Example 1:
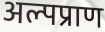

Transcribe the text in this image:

अल्पप्राण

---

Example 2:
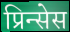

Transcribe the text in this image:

प्रिन्सेस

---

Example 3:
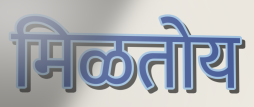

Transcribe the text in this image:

मिळतोय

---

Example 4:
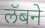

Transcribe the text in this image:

लॅबने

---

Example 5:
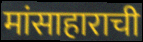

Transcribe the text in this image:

मांसाहाराची